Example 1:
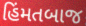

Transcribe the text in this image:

હિંમતબાજ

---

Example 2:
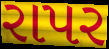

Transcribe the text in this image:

રાપર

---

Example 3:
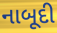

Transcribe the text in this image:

નાબૂદી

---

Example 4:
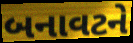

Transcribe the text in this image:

બનાવટને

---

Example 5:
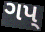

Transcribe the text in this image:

ગપ્